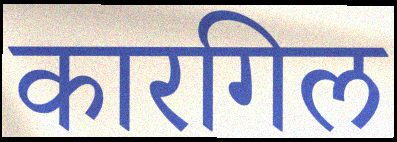
कारगिल